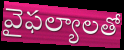
వైఫల్యాలతో